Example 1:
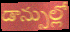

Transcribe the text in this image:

డాన్సుల్లో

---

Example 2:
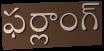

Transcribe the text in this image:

ఫర్లాంగ్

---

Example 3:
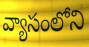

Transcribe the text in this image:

వ్యాసంలోని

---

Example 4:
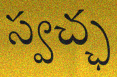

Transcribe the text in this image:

స్వచ్ఛ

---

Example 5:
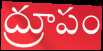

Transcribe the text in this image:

ద్రూపం